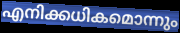
എനിക്കധികമൊന്നും